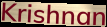
Krishnan